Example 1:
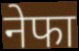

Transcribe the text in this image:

नेफा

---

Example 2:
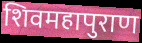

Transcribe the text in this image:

शिवमहापुराण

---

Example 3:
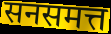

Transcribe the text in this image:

सनसमत्त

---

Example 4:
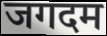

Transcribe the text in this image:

जगदम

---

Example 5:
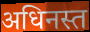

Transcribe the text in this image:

अधिनस्त